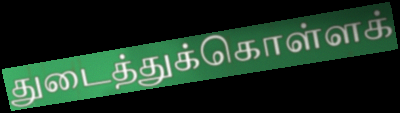
துடைத்துக்கொள்ளக்